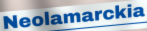
Neolamarckia